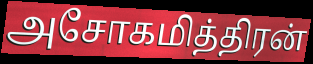
அசோகமித்திரன்